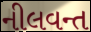
નીલવન્ત